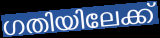
ഗതിയിലേക്ക്